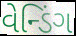
વેન્ડિંગ